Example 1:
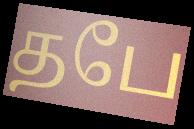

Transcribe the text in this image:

தபே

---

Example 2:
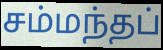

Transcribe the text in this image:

சம்மந்தப்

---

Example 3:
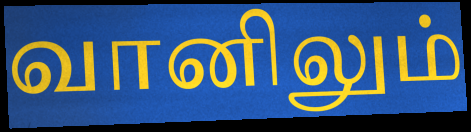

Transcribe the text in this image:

வானிலும்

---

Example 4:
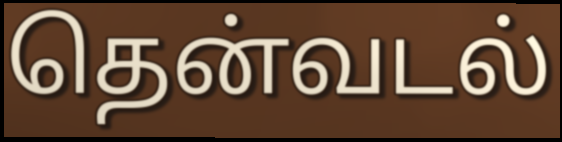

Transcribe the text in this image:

தென்வடல்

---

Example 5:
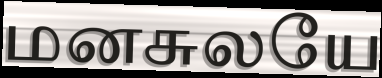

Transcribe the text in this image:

மனசுலயே